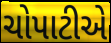
ચોપાટીએ